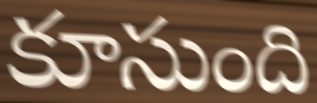
కూసుంది